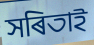
সৰিতাই